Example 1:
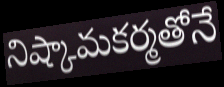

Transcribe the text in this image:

నిష్కామకర్మతోనే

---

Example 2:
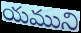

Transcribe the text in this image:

యముని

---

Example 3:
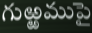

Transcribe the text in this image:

గుఱ్ఱముపై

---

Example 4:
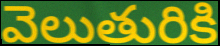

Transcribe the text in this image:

వెలుతురికి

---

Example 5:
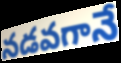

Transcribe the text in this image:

నడవగానే